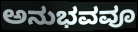
ಅನುಭವವೂ